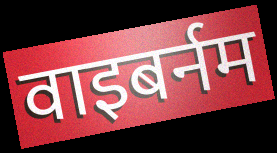
वाइबर्नम